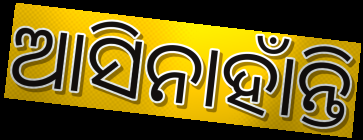
ଆସିନାହାଁନ୍ତି